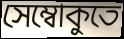
সেম্বোকুতে